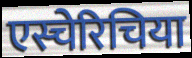
एस्चेरिचिया